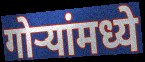
गोऱ्यांमध्ये